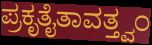
ಪ್ರಕೃತೈತಾವತ್ತ್ವಂ